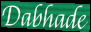
Dabhade